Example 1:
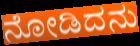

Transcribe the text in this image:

ನೋಡಿದನು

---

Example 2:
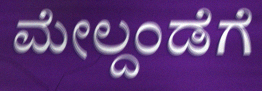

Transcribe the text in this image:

ಮೇಲ್ದಂಡೆಗೆ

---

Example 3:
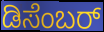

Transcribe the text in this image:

ಡಿಸೆಂಬರ್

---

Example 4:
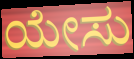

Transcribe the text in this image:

ಯೇಸು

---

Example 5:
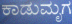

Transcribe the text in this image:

ಕಾಡುಮೃಗ